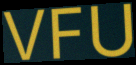
VFU